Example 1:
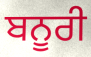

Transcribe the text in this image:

ਬਨੂਰੀ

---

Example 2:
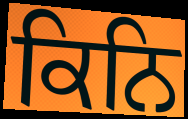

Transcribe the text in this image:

ਕਿਨਿ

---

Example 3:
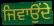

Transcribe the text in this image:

ਜਿਵਾਉਂਦੇ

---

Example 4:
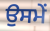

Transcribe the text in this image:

ਉਸਮੇਂ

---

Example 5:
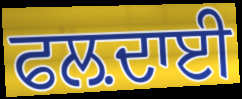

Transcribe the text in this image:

ਫਲ਼ਦਾਈ